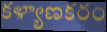
కళ్యాణకరం